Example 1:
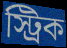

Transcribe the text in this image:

স্ট্রিক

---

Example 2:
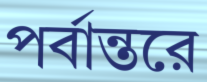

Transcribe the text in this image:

পর্বান্তরে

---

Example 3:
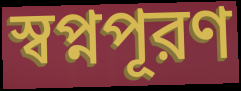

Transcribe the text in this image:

স্বপ্নপূরণ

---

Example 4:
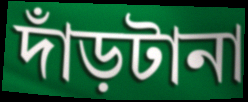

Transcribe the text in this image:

দাঁড়টানা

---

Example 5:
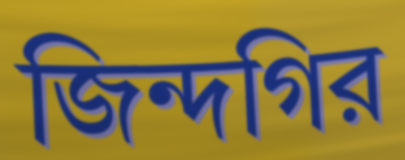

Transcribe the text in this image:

জিন্দগির